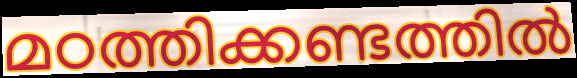
മഠത്തിക്കണ്ടത്തിൽ